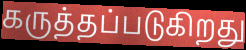
கருத்தப்படுகிறது